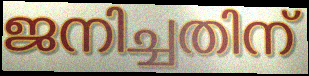
ജനിച്ചതിന്